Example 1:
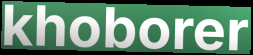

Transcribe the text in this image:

khoborer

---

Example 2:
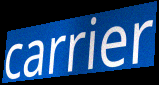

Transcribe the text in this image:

carrier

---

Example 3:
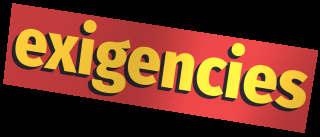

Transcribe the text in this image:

exigencies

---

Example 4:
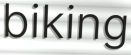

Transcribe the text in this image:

biking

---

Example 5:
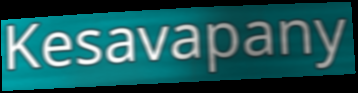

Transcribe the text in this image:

Kesavapany